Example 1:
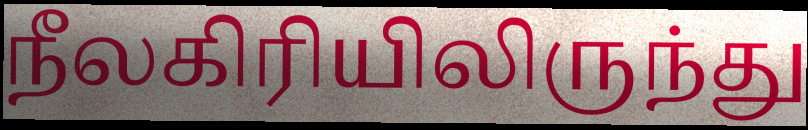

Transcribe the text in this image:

நீலகிரியிலிருந்து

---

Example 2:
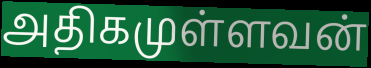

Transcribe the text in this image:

அதிகமுள்ளவன்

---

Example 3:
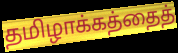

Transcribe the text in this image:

தமிழாக்கத்தைத்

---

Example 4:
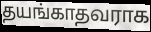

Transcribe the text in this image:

தயங்காதவராக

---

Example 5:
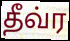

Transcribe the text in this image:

தீவ்ர